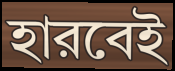
হারবেই